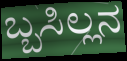
ಬ್ಬಸಿಲ್ಲನ